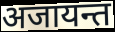
अजायन्त